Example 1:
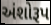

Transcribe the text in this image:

અંશોરૂપ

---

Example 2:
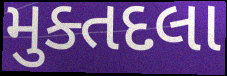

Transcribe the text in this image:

મુક્તદલા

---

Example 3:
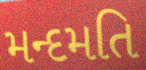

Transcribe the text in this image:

મન્દમતિ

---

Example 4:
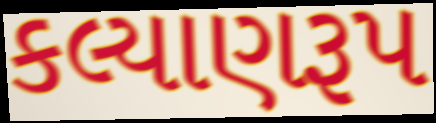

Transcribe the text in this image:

કલ્યાણરૂપ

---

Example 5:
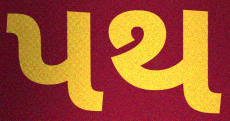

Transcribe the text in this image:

પથ